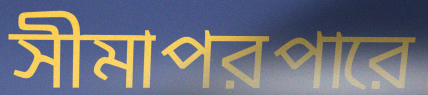
সীমাপরপারে